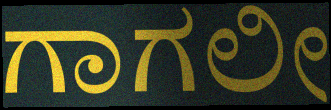
ಗಾಗಲೀ